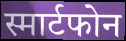
स्मार्टफोन